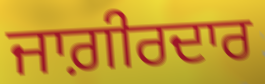
ਜਾਗ਼ੀਰਦਾਰ